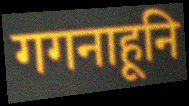
गगनाहूनि